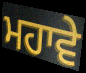
ਮਹਾਵੇ